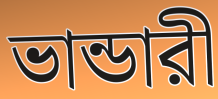
ভান্ডারী